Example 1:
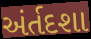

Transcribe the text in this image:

અંર્તદશા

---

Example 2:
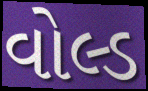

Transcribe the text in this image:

વોલ્ડ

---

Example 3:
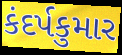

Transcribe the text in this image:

કંદર્પકુમાર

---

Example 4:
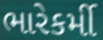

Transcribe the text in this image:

ભારેકર્મી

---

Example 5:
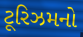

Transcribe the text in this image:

ટૂરિઝમનો